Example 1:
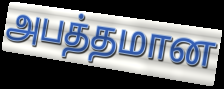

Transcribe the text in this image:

அபத்தமான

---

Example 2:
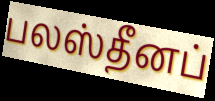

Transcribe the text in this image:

பலஸ்தீனப்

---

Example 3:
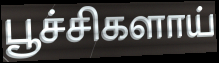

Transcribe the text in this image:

பூச்சிகளாய்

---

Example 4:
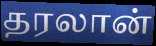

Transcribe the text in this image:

தரலான்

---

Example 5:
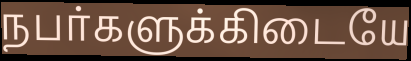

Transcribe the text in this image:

நபர்களுக்கிடையே